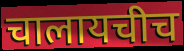
चालायचीच